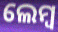
ଲେମ୍ବ